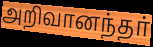
அறிவானந்தர்